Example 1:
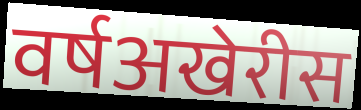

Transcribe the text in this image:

वर्षअखेरीस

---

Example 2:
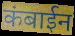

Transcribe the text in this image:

कंबाईन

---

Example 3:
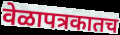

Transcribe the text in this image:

वेळापत्रकातच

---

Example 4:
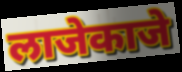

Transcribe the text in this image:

लाजेकाजे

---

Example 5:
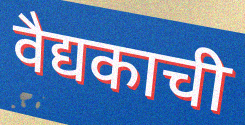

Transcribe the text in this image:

वैद्यकाची